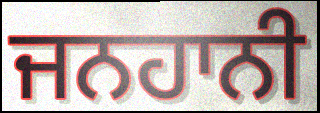
ਜਨਹਾਨੀ